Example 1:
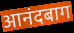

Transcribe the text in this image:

आनंदबाग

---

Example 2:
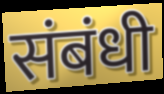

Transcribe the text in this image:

संबंधी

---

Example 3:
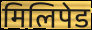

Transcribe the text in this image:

मिलिपेड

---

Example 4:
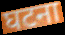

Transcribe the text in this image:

घटना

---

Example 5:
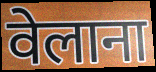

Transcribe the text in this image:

वेलाना